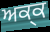
ਅਕ੍ਕ